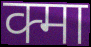
क्मा